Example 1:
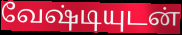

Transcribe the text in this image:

வேஷ்டியுடன்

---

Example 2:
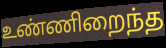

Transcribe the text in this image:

உண்ணிறைந்த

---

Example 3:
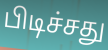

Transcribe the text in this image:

பிடிச்சது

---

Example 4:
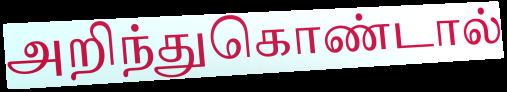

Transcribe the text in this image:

அறிந்துகொண்டால்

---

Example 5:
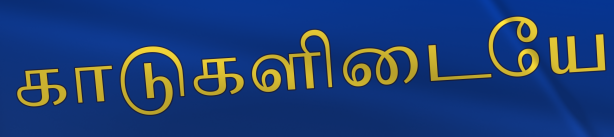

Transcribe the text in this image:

காடுகளிடையே